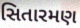
સિતારમણ